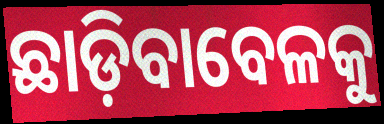
ଛାଡ଼ିବାବେଳକୁ